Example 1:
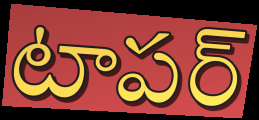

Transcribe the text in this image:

టాపర్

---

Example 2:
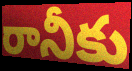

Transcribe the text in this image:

రానీకు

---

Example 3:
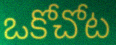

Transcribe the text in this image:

ఒకోచోట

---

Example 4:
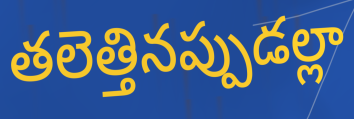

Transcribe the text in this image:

తలెత్తినప్పుడల్లా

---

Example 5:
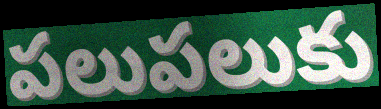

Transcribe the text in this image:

పలుపలుకు